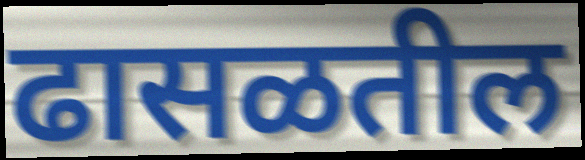
ढासळतील